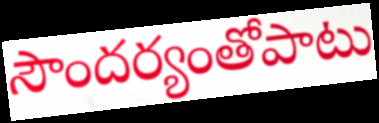
సౌందర్యంతోపాటు